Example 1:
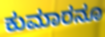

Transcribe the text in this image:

ಕುಮಾರನೂ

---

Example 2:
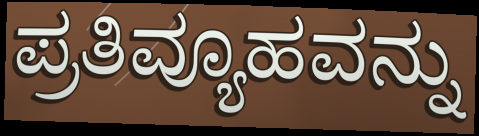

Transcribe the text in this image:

ಪ್ರತಿವ್ಯೂಹವನ್ನು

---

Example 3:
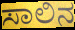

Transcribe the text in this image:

ಸಾಲಿನ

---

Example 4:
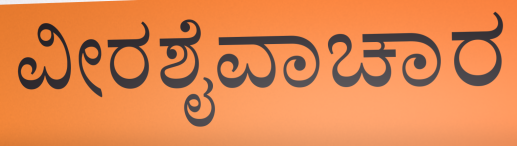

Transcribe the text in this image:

ವೀರಶೈವಾಚಾರ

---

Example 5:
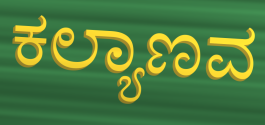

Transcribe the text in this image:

ಕಲ್ಯಾಣವ